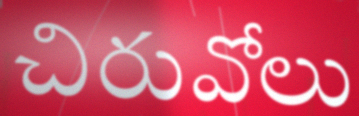
చిరువోలు